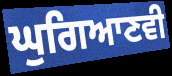
ਘੁਗਿਆਣਵੀ